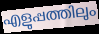
എളുപ്പത്തിലും